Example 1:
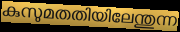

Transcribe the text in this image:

കുസുമതതിയിലേന്തുന്ന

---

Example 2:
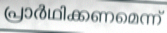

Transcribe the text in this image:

പ്രാർഥിക്കണമെന്ന്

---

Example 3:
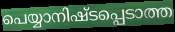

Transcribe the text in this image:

പെയ്യാനിഷ്ടപ്പെടാത്ത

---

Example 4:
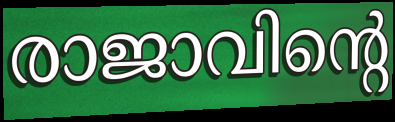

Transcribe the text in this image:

രാജാവിന്റെ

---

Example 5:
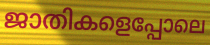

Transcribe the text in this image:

ജാതികളെപ്പോലെ